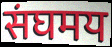
संघमय